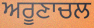
ਅਰੂਣਾਚਲ